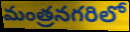
మంత్రనగరిలో